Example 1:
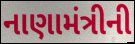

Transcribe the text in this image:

નાણામંત્રીની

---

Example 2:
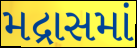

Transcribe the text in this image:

મદ્રાસમાં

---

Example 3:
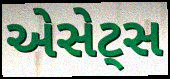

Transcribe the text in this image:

એસેટ્સ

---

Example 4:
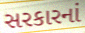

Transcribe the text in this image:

સરકારનાં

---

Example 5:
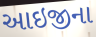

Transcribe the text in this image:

આઇજીના